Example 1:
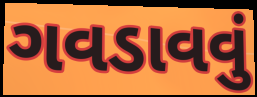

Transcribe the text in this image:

ગવડાવવું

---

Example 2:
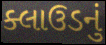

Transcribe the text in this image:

ક્લાઉડનું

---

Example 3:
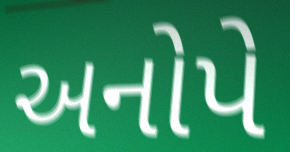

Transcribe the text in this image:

અનોપે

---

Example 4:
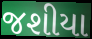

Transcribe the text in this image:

જશીયા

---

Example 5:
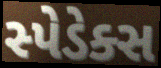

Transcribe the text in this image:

સ્પેડેક્સ